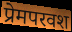
प्रेमपरवश